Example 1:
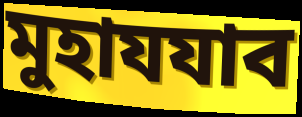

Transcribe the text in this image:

মুহাযযাব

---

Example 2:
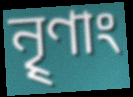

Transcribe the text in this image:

নৄণাং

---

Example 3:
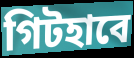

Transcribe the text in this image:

গিটহাবে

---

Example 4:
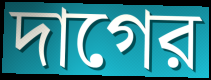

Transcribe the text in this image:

দাগের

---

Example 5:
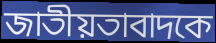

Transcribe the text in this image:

জাতীয়তাবাদকে